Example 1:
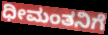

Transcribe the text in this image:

ಧೀಮಂತನಿಗೆ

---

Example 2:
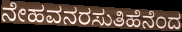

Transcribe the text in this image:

ನೇಹವನರಸುತಿಹೆನೆಂದ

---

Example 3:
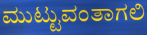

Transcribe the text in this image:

ಮುಟ್ಟುವಂತಾಗಲಿ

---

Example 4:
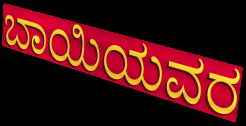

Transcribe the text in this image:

ಬಾಯಿಯವರ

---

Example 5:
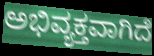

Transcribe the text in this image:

ಅಭಿವ್ಯಕ್ತವಾಗಿದೆ